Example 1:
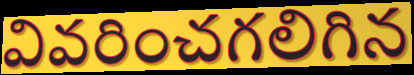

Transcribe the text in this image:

వివరించగలిగిన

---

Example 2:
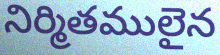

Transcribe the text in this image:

నిర్మితములైన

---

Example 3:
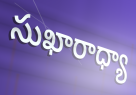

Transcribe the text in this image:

సుఖారాధ్యా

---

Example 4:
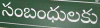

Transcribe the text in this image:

సంబంధులకు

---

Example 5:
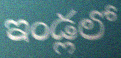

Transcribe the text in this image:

ఇండ్లలో